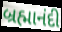
બ્રહ્માનંદી